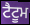
ਟੈਟੂਮ